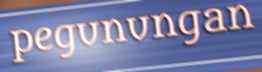
pegunungan